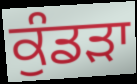
ਕੁੰਡੜਾ